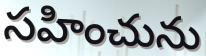
సహించును